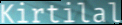
Kirtilal